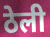
ठेली